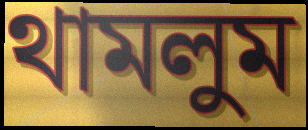
থামলুম